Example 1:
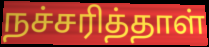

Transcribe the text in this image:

நச்சரித்தாள்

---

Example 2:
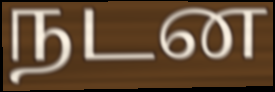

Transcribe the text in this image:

நடன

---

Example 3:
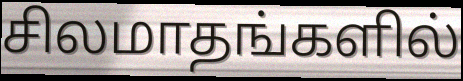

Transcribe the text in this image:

சிலமாதங்களில்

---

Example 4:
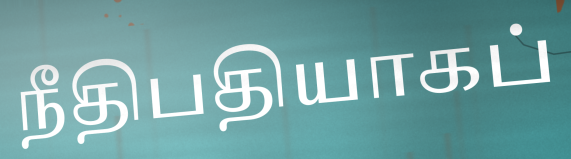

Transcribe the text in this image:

நீதிபதியாகப்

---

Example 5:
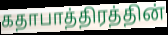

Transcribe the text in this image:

கதாபாத்திரத்தின்